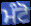
ਮੰਟੋ